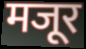
मजूर